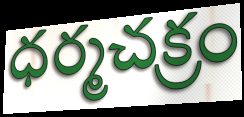
ధర్మచక్రం